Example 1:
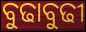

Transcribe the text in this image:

ବୁଢାବୁଢୀ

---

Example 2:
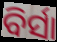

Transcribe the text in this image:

ବିର୍ସା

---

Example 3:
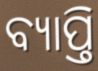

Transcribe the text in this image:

ବ୍ୟାପ୍ତି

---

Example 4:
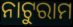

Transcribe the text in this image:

ନାଟୁରାମ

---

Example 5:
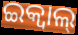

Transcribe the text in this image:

ଇକ୍ୱାଲ୍